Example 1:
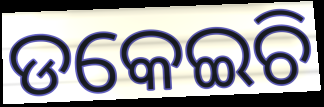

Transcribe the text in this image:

ଡକେଇଚି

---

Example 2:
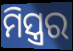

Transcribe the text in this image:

ମିସ୍ତ୍ରର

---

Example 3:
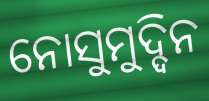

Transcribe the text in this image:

ନୋସୁମୁଦ୍ଦିନ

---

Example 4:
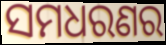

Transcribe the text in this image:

ସମଧରଣର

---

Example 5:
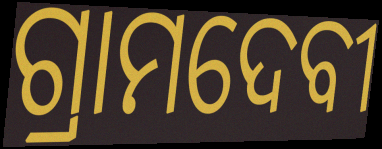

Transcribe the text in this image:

ଗ୍ରାମଦେବୀ